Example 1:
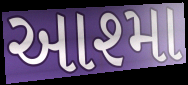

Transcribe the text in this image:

આશ્મા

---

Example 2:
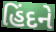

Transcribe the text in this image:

હિંદને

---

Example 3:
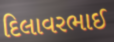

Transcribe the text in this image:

દિલાવરભાઈ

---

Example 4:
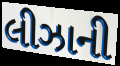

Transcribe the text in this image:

લીઝાની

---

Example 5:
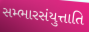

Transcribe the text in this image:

સમ્ભારસંયુત્તાતિ